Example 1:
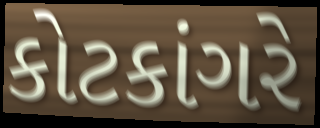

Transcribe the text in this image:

કોટકાંગરે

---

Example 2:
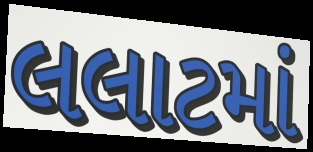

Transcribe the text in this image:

લલાટમાં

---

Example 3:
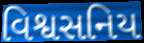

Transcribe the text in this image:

વિશ્વસનિય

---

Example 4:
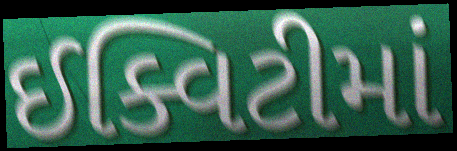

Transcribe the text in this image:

ઈક્વિટીમાં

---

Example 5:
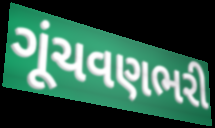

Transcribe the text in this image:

ગૂંચવણભરી